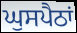
ਘੁਸਪੈਠਾਂ